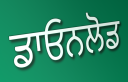
ਡਾਓਨਲੋਡ